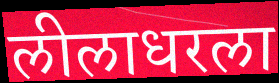
लीलाधरला